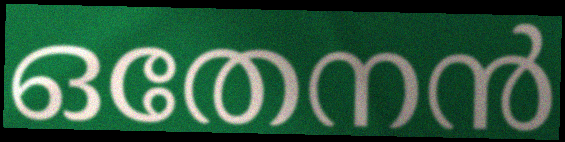
ഒതേനൻ